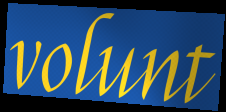
volunt